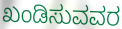
ಖಂಡಿಸುವವರ